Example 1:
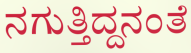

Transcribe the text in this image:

ನಗುತ್ತಿದ್ದನಂತೆ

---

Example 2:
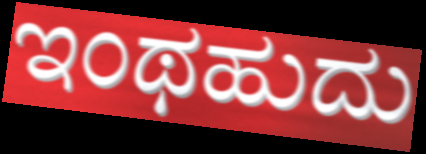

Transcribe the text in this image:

ಇಂಥಹುದು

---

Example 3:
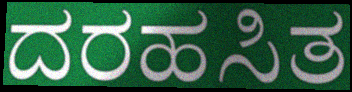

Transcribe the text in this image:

ದರಹಸಿತ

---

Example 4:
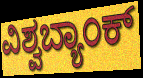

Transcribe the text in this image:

ವಿಶ್ವಬ್ಯಾಂಕ್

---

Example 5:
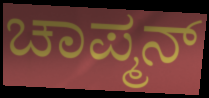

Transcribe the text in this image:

ಚಾಪ್ಮನ್